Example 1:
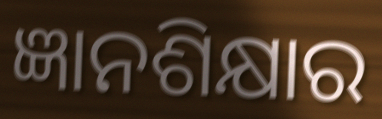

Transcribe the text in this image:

ଜ୍ଞାନଶିକ୍ଷାର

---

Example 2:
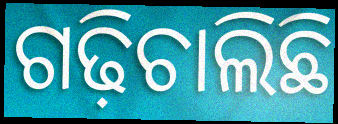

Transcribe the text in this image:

ଗଢ଼ିଚାଲିଛି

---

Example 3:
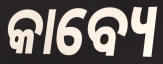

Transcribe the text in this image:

କାବ୍ୟେ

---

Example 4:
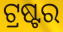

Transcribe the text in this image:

ଟ୍ରଷ୍ଟର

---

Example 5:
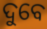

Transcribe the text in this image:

ଦୁବେ